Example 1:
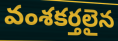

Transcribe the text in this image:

వంశకర్తలైన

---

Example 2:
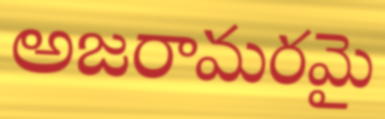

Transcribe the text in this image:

అజరామరమై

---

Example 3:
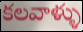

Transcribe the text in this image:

కలవాళ్ళు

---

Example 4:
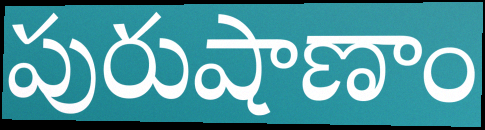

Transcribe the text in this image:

పురుషాణాం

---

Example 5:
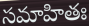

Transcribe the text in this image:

సమాహితః